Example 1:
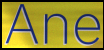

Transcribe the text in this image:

Ane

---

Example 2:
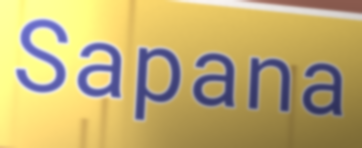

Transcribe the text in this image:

Sapana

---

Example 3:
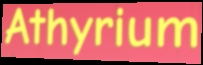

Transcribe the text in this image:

Athyrium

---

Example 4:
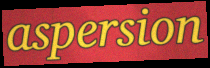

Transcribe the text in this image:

aspersion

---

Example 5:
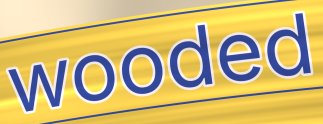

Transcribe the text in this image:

wooded